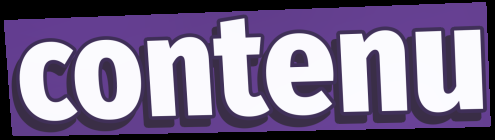
contenu